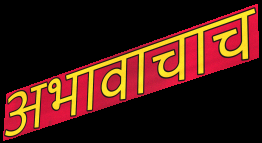
अभावाचाच